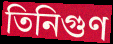
তিনিগুণ